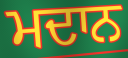
ਮਦਾਨ